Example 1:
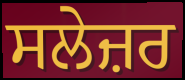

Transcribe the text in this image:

ਸਲੇਜ਼ਰ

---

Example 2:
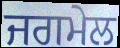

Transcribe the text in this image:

ਜਗਮੇਲ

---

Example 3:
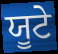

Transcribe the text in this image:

ਯੂਟੇ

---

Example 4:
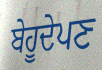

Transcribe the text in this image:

ਬੇਹੂਦੇਪਣ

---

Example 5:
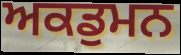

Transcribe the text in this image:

ਅਕਡੁਮਨ